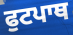
ਫੁਟਪਾਥ